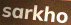
sarkho